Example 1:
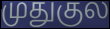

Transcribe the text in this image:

முதுகுல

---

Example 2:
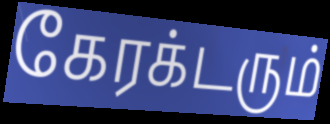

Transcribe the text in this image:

கேரக்டரும்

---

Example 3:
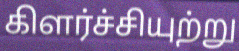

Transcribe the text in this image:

கிளர்ச்சியுற்று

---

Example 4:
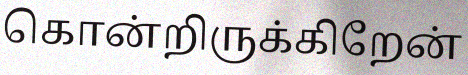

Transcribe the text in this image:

கொன்றிருக்கிறேன்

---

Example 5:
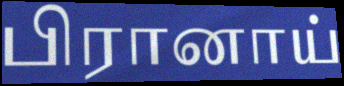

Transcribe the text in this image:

பிரானாய்